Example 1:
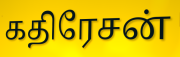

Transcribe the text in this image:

கதிரேசன்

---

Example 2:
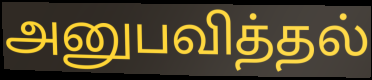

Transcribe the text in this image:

அனுபவித்தல்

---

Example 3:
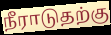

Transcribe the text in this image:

நீராடுதற்கு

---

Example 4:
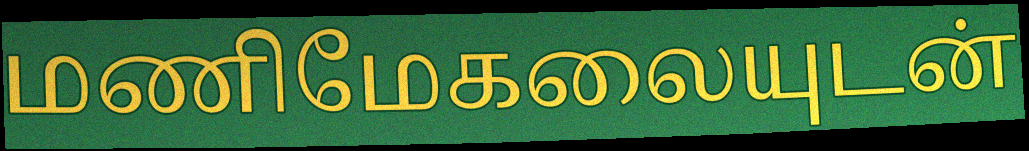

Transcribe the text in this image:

மணிமேகலையுடன்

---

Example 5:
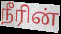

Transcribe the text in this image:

நீரின்